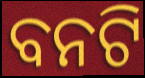
ବନଟି